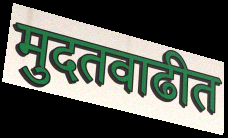
मुदतवाढीत